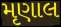
મૃણાલ